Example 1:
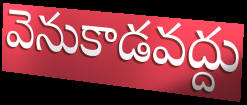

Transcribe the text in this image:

వెనుకాడవద్దు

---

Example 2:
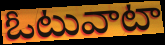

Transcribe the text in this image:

ఓటువాటా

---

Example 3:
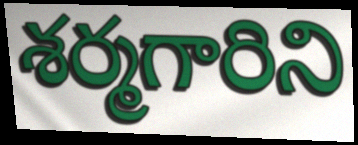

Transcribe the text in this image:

శర్మగారిని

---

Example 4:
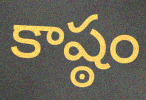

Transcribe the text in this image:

కాష్ఠం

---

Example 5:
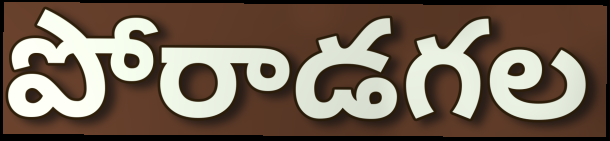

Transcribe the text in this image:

పోరాడగల